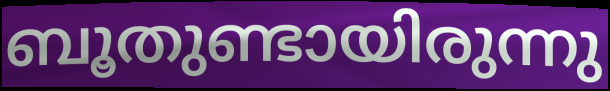
ബൂതുണ്ടായിരുന്നു